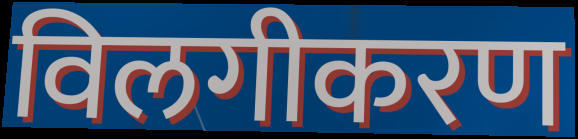
विलगीकरण